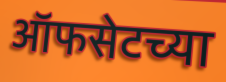
ऑफसेटच्या